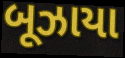
બૂઝાયા